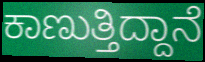
ಕಾಣುತ್ತಿದ್ದಾನೆ